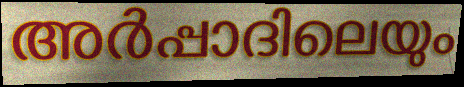
അർപ്പാദിലെയും